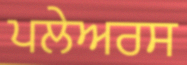
ਪਲੇਅਰਸ